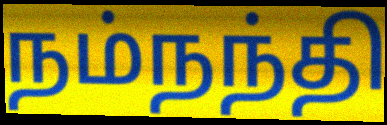
நம்நந்தி